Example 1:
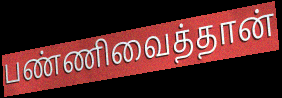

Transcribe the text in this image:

பண்ணிவைத்தான்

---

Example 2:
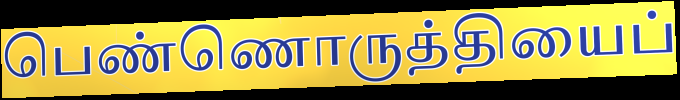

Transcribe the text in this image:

பெண்ணொருத்தியைப்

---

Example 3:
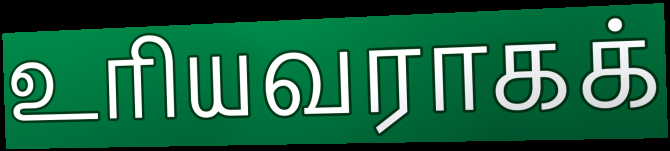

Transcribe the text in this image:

உரியவராகக்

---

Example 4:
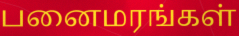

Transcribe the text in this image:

பனைமரங்கள்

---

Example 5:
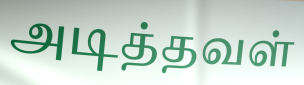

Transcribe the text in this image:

அடித்தவள்